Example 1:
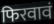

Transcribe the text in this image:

फिरवावं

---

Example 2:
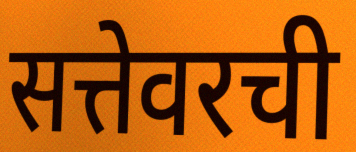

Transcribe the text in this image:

सत्तेवरची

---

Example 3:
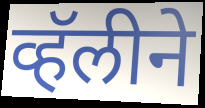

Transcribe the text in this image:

व्हॅलीने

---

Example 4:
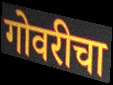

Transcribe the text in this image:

गोवरीचा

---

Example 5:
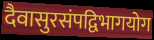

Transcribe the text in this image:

दैवासुरसंपद्विभागयोग